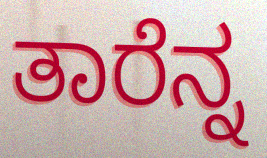
ತಾರೆನ್ನ